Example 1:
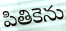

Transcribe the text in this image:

పితికెను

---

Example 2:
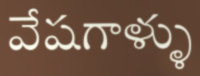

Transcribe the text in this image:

వేషగాళ్ళు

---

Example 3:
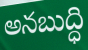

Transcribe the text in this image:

అనబుద్ధి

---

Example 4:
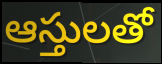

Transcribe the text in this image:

ఆస్తులతో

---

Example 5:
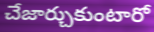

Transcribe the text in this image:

చేజార్చుకుంటారో